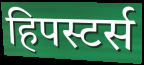
हिपस्टर्स